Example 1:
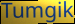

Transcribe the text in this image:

Tumgik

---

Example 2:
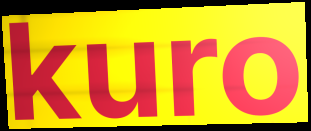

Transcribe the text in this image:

kuro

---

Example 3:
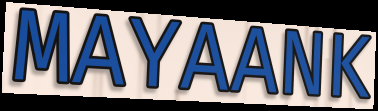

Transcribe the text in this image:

MAYAANK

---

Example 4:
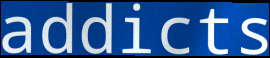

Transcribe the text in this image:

addicts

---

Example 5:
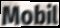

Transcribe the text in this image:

Mobil